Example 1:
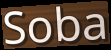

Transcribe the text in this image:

Soba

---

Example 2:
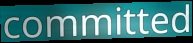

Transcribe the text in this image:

committed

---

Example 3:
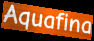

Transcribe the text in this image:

Aquafina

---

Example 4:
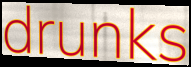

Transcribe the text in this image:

drunks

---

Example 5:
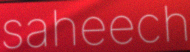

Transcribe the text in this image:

saheech